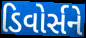
ડિવોર્સને